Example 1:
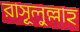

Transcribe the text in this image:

রাসূলুল্লাহ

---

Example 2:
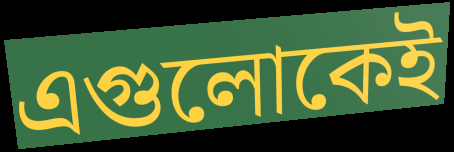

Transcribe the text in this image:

এগুলোকেই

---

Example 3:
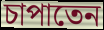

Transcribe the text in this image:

চাপাতেন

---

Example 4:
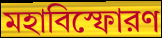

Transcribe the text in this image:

মহাবিস্ফোরণ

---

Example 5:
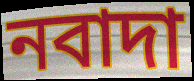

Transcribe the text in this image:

নবাদা